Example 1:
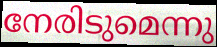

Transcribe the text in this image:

നേരിടുമെന്നു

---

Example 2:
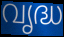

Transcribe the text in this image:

വൃദ്ധ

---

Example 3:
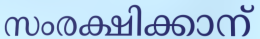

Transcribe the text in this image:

സംരക്ഷിക്കാന്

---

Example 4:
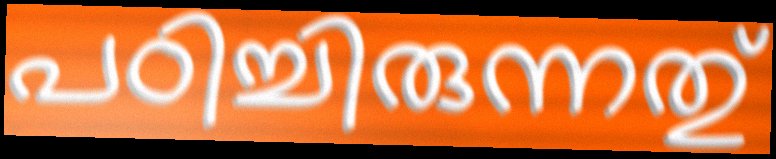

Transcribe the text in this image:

പഠിച്ചിരുന്നതു്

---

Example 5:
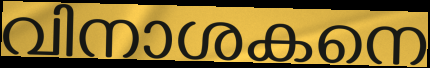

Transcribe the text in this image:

വിനാശകനെ